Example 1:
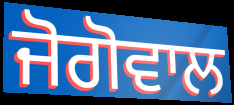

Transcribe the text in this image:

ਜੋਗੋਵਾਲ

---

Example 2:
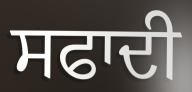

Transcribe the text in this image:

ਸਫਾਦੀ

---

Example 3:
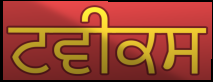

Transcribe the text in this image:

ਟਵੀਕਸ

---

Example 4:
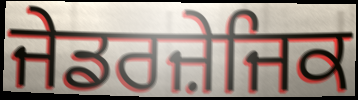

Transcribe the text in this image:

ਜੇਡਰਜ਼ੇਜਿਕ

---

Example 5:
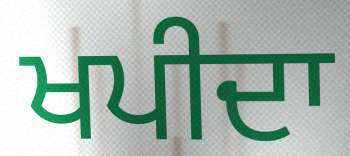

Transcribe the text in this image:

ਖਪੀਦਾ